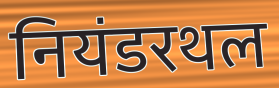
नियंडरथल